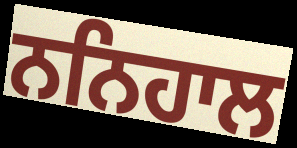
ਨਨਿਹਾਲ